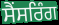
ਸੈਂਸਰਿੰਗ